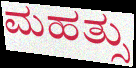
ಮಹತ್ಸು